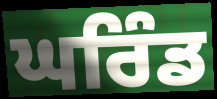
ਘਰਿੰਡ